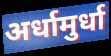
अर्धामुर्धा